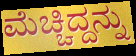
ಮೆಚ್ಚಿದ್ದನ್ನು